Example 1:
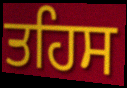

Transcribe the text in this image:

ਤਹਿਸ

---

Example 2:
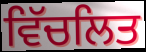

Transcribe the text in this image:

ਵਿੱਚਲਿਤ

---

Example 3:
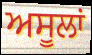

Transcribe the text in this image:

ਅਸੂਲਾਂ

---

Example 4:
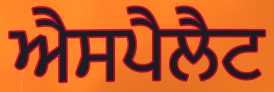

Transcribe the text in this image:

ਐਸਪੈਲੈਟ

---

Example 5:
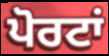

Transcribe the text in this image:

ਪੋਰਟਾਂ